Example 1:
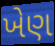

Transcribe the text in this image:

ખેણ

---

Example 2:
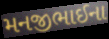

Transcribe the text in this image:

મનજીભાઈના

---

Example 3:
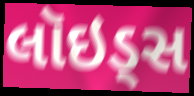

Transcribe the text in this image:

લૉઇડ્સ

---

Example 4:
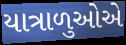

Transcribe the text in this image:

યાત્રાળુઓએ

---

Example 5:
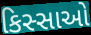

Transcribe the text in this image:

કિસ્સાઓ